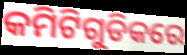
କମିଟିଗୁଡିକରେ